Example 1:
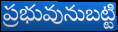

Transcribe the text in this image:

ప్రభువునుబట్టి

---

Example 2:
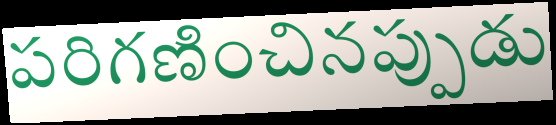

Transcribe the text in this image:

పరిగణించినప్పుడు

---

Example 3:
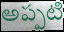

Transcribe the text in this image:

అప్పటి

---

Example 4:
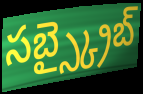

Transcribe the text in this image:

సబ్స్క్రైబ్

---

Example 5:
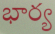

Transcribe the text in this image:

భార్య